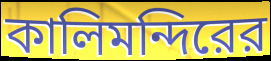
কালিমন্দিরের